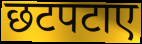
छटपटाए